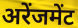
अरेंजमेंट